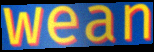
wean